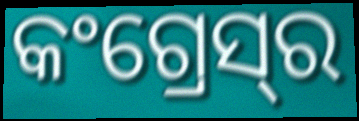
କଂଗ୍ରେସ୍‌ର